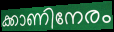
ക്കാണിനേരം